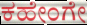
ಕಹೇಂಗೇ